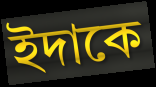
ইদাকে